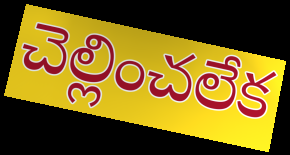
చెల్లించలేక